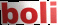
boli